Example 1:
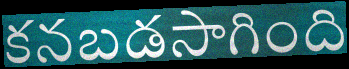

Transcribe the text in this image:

కనబడసాగింది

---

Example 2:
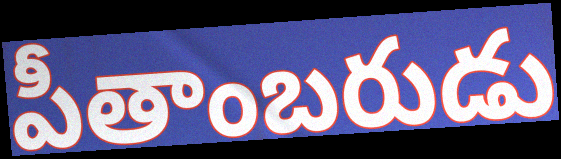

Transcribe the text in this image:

పీతాంబరుడు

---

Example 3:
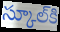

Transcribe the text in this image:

స్కూల్‌కి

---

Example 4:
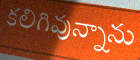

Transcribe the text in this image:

కలిగివున్నాను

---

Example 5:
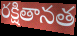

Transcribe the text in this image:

రక్షితానత